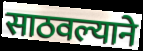
साठवल्याने